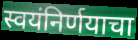
स्वयंनिर्णयाचा